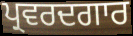
ਪ੍ਰਵਰਦਗਾਰ